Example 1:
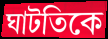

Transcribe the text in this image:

ঘাটতিকে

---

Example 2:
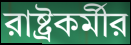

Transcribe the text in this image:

রাষ্ট্রকর্মীর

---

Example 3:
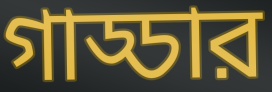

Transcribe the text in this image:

গাড্ডার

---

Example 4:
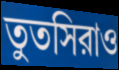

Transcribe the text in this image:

তুতসিরাও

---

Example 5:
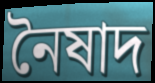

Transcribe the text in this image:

নৈষাদ